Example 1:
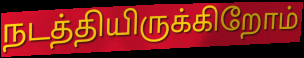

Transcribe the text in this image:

நடத்தியிருக்கிறோம்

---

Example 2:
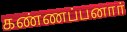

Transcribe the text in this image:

கண்ணப்பனார்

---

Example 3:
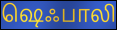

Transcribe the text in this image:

ஷெஃபாலி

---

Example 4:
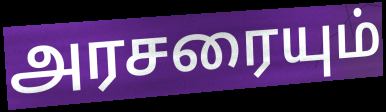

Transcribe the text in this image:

அரசரையும்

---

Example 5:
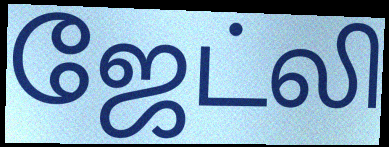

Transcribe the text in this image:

ஜேட்லி